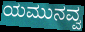
ಯಮುನವ್ವ